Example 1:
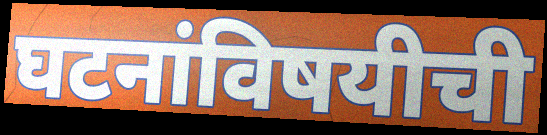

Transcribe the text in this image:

घटनांविषयीची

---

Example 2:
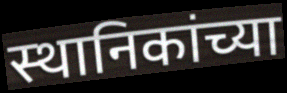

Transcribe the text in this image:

स्थानिकांच्या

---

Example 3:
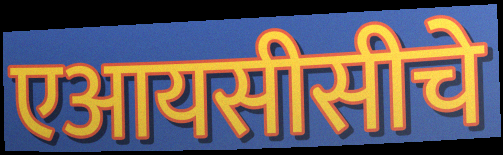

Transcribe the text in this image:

एआयसीसीचे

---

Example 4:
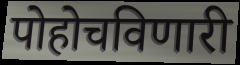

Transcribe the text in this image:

पोहोचविणारी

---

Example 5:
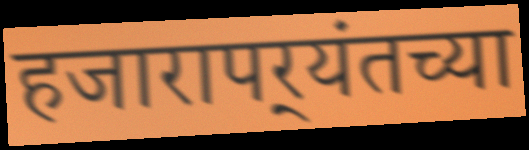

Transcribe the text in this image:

हजारापर्यंतच्या